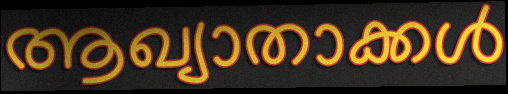
ആഖ്യാതാക്കൾ